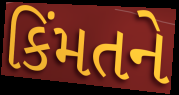
કિંમતને